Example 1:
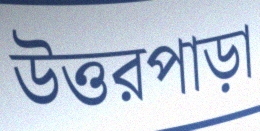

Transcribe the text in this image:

উত্তরপাড়া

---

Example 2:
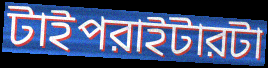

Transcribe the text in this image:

টাইপরাইটারটা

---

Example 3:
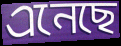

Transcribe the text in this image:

এনেছে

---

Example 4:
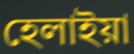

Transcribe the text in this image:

হেলাইয়া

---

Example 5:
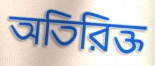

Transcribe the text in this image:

অতিরিক্ত